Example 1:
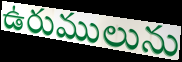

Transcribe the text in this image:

ఉరుములును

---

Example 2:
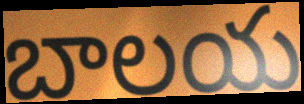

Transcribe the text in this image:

బాలయ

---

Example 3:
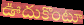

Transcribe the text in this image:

ఊదుకొంటూ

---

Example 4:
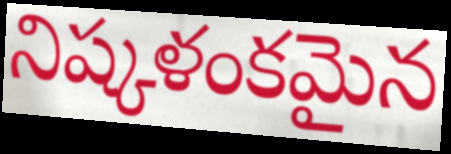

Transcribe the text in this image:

నిష్కళంకమైన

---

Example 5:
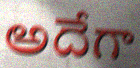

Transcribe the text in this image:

అదేగా